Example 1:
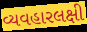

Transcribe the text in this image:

વ્યવહારલક્ષી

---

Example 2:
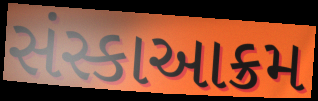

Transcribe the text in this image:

સંસ્કાઆક્રમ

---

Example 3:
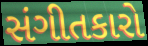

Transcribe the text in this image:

સંગીતકારો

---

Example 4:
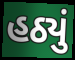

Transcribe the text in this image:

હઠ્યું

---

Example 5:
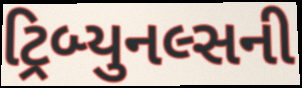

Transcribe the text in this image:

ટ્રિબ્યુનલ્સની